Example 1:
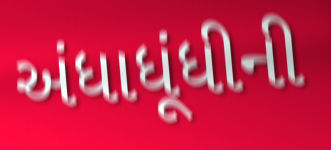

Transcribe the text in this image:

અંધાધૂંધીની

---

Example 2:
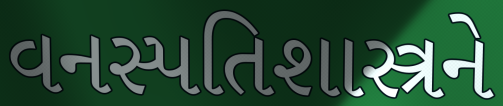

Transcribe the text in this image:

વનસ્પતિશાસ્ત્રને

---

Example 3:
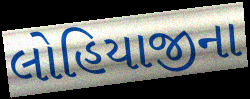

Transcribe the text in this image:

લોહિયાજીના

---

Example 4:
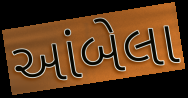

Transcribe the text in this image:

આંબેલા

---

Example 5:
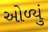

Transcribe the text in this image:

ઓળ્યું